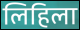
लिहिला